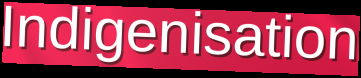
Indigenisation